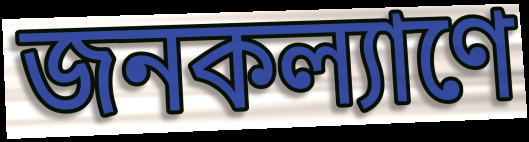
জনকল্যাণে